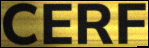
CERF